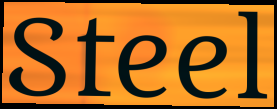
Steel